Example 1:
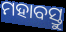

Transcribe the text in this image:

ମହାବସ୍ତୁ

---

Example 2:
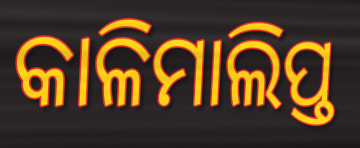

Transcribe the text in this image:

କାଳିମାଲିପ୍ତ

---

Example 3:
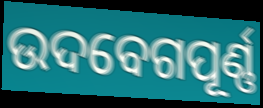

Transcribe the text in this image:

ଉଦବେଗପୂର୍ଣ୍ଣ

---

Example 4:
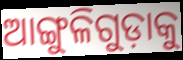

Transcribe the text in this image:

ଆଙ୍ଗୁଳିଗୁଡ଼ାକୁ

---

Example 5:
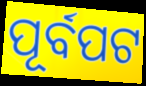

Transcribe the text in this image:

ପୂର୍ବପଟ